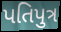
પતિપુત્ર